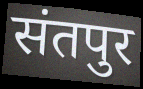
संतपुर